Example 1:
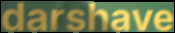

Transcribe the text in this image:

darshave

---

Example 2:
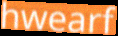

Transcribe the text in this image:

hwearf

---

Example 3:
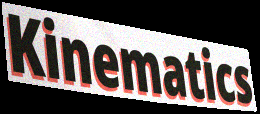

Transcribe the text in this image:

Kinematics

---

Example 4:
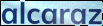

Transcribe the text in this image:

alcaraz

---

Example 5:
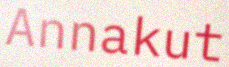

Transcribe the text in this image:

Annakut